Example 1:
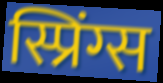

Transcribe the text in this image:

स्प्रिंग्स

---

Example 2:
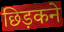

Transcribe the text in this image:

छिड़कने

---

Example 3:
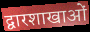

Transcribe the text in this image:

द्वारशाखाओं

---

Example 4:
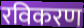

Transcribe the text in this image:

रविकरण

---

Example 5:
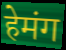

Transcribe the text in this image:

हेमंग